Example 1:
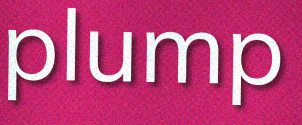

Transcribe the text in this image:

plump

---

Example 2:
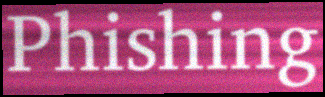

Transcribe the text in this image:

Phishing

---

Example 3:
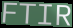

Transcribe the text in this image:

FTIR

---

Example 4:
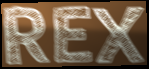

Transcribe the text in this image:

REX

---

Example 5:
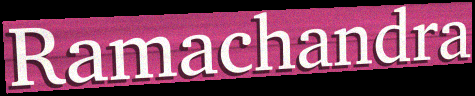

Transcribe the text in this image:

Ramachandra